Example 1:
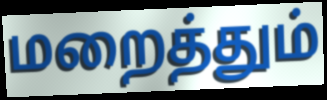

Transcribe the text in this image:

மறைத்தும்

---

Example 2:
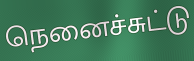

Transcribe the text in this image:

நெனைச்சுட்டு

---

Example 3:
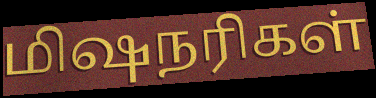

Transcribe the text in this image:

மிஷநரிகள்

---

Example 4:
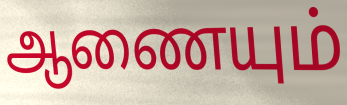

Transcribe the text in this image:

ஆணையும்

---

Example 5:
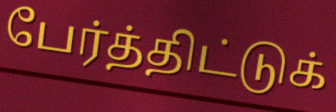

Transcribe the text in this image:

பேர்த்திட்டுக்